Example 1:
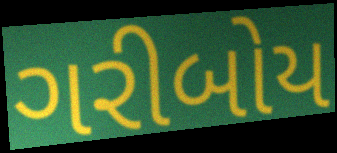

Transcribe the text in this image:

ગરીબોય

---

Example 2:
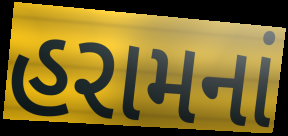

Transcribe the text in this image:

હરામનાં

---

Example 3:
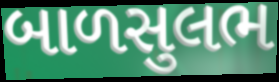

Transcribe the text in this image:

બાળસુલભ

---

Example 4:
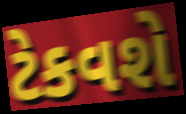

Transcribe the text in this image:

ટેકવશે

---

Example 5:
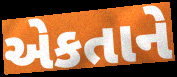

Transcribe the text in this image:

એકતાને